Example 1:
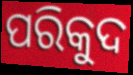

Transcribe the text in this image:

ପରିକୁଦ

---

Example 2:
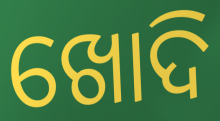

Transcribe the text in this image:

ଖୋଦି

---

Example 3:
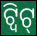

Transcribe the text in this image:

ଟ୍ୱିଟ୍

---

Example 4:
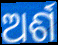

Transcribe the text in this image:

ଅର୍ଶ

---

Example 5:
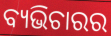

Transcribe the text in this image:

ବ୍ୟଭିଚାରର